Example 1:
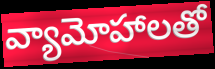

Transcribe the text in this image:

వ్యామోహాలతో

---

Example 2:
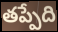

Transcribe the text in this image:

తప్పేది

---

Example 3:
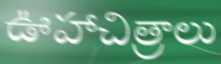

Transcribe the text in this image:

ఊహాచిత్రాలు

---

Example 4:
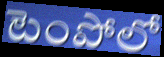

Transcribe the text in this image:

టెంపోలో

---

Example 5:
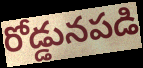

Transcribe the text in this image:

రోడ్డునపడి